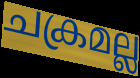
ചക്രമല്ല